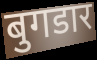
बुगडार